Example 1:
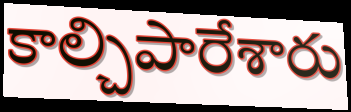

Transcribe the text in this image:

కాల్చిపారేశారు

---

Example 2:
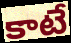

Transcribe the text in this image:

కాటే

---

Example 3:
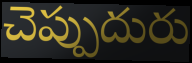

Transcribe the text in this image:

చెప్పుదురు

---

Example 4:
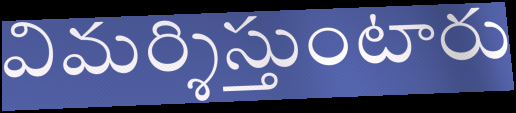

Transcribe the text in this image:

విమర్శిస్తుంటారు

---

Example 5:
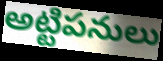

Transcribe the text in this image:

అట్టిపనులు